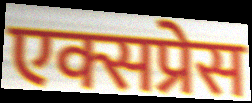
एक्सप्रेस